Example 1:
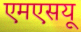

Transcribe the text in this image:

एमएसयू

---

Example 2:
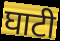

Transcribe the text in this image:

घाटी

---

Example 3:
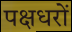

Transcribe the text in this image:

पक्षधरों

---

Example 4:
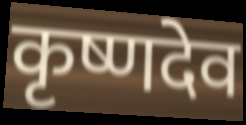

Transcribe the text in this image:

कृष्णदेव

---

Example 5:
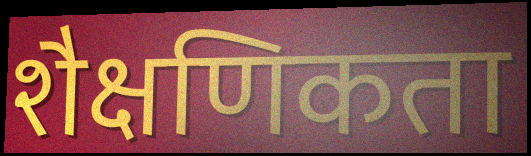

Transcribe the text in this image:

शैक्षणिकता